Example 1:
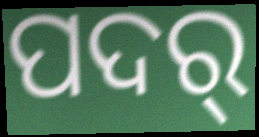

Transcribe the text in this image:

ପଦର୍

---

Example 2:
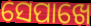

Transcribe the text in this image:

ସେପାଖେ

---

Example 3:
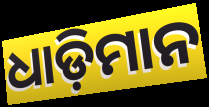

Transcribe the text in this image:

ଧାଡ଼ିମାନ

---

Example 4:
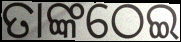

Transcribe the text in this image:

ତାଙ୍କଠେଇ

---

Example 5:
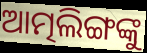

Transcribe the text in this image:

ଆତ୍ମଲିଙ୍ଗଙ୍କୁ